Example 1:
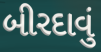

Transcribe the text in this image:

બીરદાવું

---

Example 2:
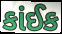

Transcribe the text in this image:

કાંઈક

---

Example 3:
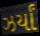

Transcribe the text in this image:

ઝર્યાં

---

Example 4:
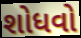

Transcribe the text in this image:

શોધવો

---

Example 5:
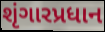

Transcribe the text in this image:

શૃંગારપ્રધાન